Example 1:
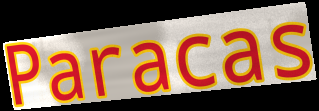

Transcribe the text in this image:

Paracas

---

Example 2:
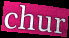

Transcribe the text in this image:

chur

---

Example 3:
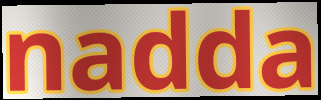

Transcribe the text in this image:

nadda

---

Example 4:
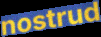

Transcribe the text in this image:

nostrud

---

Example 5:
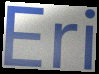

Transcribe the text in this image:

Eri